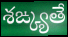
శఙ్క్యతే